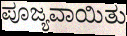
ಪೂಜ್ಯವಾಯಿತು